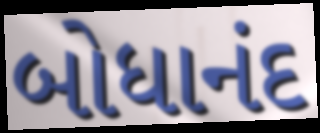
બોધાનંદ